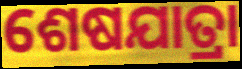
ଶେଷଯାତ୍ରା